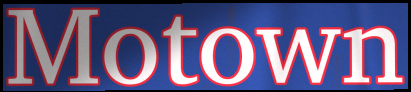
Motown